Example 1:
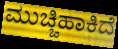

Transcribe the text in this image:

ಮುಚ್ಚಿಹಾಕಿದೆ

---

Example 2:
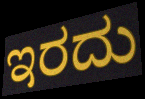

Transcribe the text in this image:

ಇರದು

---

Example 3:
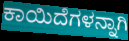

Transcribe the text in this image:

ಕಾಯಿದೆಗಳನ್ನಾಗಿ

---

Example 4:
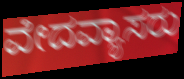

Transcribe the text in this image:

ವೇದವ್ಯಾಸರು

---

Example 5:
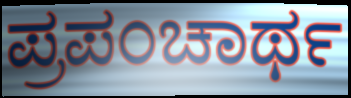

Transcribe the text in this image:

ಪ್ರಪಂಚಾರ್ಥ